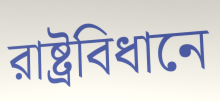
রাষ্ট্রবিধানে